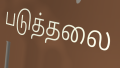
படுத்தலை